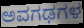
ಅವಗಢಗಳ